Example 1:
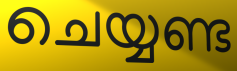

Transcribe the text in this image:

ചെയ്യണ്ട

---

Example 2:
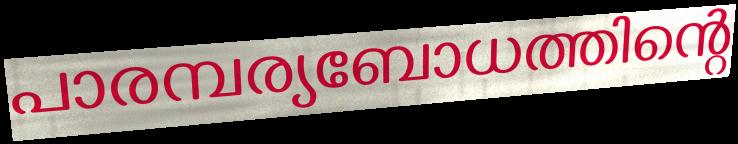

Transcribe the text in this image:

പാരമ്പര്യബോധത്തിന്റെ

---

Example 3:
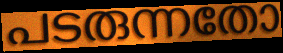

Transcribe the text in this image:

പടരുന്നതോ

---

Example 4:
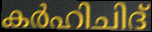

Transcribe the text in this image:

കർഹിചിദ്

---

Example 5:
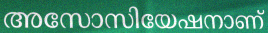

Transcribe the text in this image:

അസോസിയേഷനാണ്